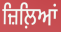
ਜ਼ਿਲ਼ਿਆਂ